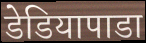
डेडियापाडा